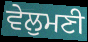
ਵੇਲੁਮਣੀ